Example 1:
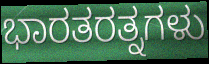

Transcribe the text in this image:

ಭಾರತರತ್ನಗಳು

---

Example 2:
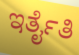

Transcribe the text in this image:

ಇರ್ತೈತಿ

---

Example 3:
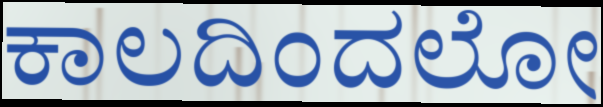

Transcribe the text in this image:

ಕಾಲದಿಂದಲೋ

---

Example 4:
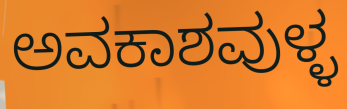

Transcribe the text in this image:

ಅವಕಾಶವುಳ್ಳ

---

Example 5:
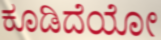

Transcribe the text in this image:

ಕೂಡಿದೆಯೋ